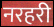
नरहरी